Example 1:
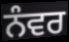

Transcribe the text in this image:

ਨੰਵਰ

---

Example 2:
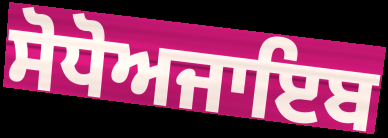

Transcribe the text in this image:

ਸੋਧੋਅਜਾਇਬ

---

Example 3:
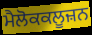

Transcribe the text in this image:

ਮੈਲੋਕਕਲੂਜ਼ਨ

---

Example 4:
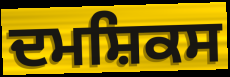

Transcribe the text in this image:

ਦਮਸ਼ਿਕਸ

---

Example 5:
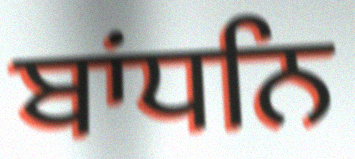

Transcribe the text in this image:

ਬਾਂਧਨਿ